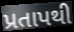
પ્રતાપથી